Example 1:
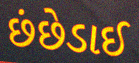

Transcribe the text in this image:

છંછેડાઈ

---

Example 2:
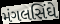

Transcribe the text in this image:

મંગલસિંઘે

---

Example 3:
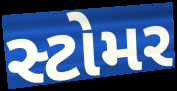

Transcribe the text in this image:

સ્ટોમર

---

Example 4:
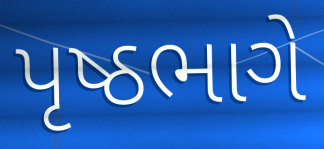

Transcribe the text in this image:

પૃષ્ઠભાગે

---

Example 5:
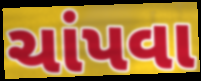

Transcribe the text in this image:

ચાંપવા